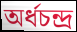
অৰ্ধচন্দ্ৰ